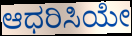
ಆಧರಿಸಿಯೇ